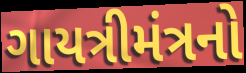
ગાયત્રીમંત્રનો